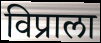
विप्राला